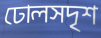
ঢোলসদৃশ